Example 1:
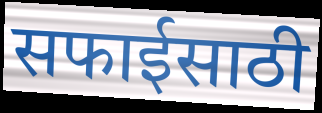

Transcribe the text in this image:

सफाईसाठी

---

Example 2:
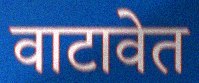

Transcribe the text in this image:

वाटावेत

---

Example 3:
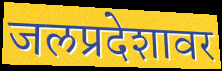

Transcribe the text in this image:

जलप्रदेशावर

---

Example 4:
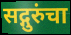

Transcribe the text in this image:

सद्गुरुंचा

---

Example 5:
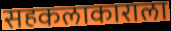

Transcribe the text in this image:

सहकलाकाराला